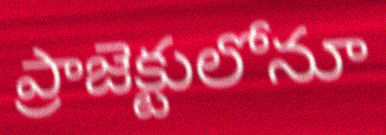
ప్రాజెక్టులోనూ